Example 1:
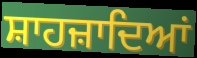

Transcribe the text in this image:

ਸ਼ਾਹਜ਼ਾਦਿਆਂ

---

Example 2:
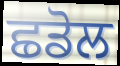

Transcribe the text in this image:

ਛਡੋਲ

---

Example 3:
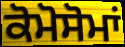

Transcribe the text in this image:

ਕੋਮੋਸੋਮਾਂ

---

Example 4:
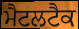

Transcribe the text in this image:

ਮੈਟਲਟੈਕ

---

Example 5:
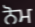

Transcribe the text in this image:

ਨੋਮ